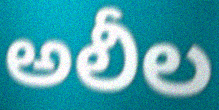
అలీల